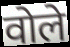
वोले